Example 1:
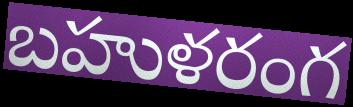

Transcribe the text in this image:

బహుళరంగ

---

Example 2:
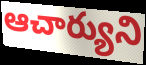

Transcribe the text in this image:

ఆచార్యుని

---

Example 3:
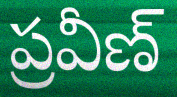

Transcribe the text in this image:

ప్రవీణ్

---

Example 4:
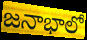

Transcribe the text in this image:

జనాభాలో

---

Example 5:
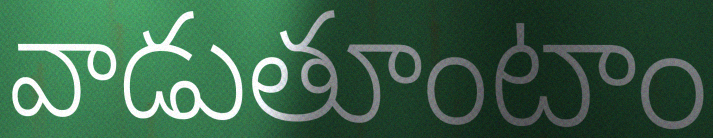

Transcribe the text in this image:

వాడుతూంటాం